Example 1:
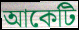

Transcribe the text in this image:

আকেটি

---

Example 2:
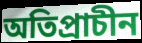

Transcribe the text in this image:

অতিপ্রাচীন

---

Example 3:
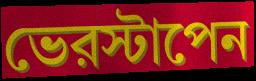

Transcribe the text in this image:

ভেরস্টাপেন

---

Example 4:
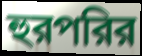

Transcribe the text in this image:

হুরপরির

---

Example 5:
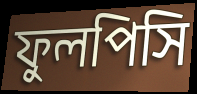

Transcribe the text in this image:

ফুলপিসি